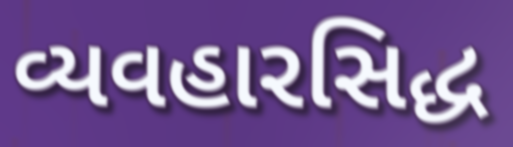
વ્યવહારસિદ્ધ